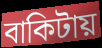
বাকিটায়